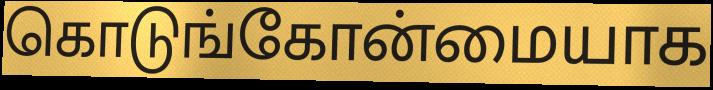
கொடுங்கோன்மையாக